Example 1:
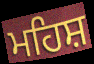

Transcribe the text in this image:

ਮਹਿਸ਼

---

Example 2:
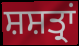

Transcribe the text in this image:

ਸ਼ਸ਼ਤ੍ਰਾਂ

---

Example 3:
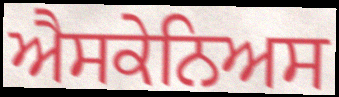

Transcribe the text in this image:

ਐਸਕੇਨਿਅਸ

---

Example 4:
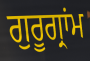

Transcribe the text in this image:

ਗੁਰੂਗ੍ਰਾਂਮ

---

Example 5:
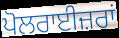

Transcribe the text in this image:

ਪੋਲਰਾਈਜ਼ਰਾਂ